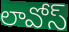
లావోస్